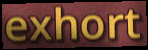
exhort